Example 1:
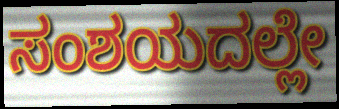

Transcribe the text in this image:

ಸಂಶಯದಲ್ಲೇ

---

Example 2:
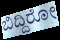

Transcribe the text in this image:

ಬಿದ್ದಿರೋ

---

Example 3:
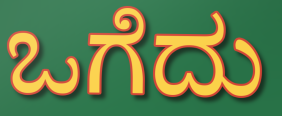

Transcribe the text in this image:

ಒಗೆದು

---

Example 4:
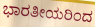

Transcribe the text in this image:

ಭಾರತೀಯರಿಂದ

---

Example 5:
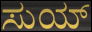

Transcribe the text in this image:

ಸುಯ್